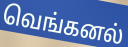
வெங்கனல்